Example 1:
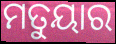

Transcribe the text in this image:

ମତୁୟାର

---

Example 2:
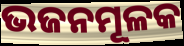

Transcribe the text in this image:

ଭଜନମୂଳକ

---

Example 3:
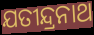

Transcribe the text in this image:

ଯତୀନ୍ଦ୍ରନାଥ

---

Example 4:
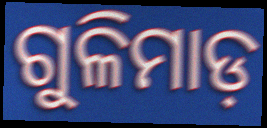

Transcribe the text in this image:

ଗୁଳିମାଡ଼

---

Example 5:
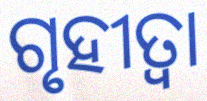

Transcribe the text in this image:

ଗୃହୀତ୍ଵା